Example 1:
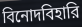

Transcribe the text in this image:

বিনোদবিহারি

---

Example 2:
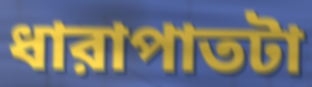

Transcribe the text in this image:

ধারাপাতটা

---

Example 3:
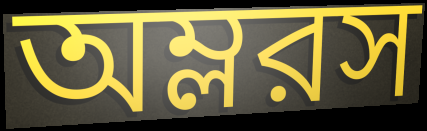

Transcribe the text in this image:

অম্লরস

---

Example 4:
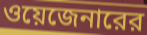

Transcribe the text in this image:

ওয়েজেনারের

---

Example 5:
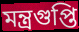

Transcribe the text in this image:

মন্ত্রগুপ্তি